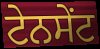
ਟੇਨਸੇਂਟ